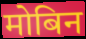
मोबिन